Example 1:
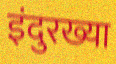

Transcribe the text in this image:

इंदुरख्या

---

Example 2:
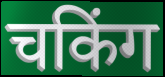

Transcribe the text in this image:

चकिंग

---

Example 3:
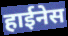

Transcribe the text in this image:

हाईनेस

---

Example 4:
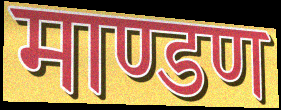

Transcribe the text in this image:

माण्डण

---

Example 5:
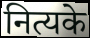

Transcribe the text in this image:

नित्यके